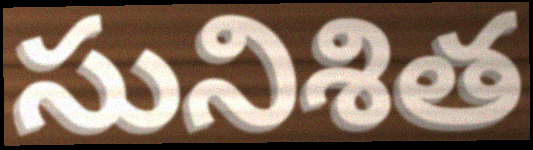
సునిశిత